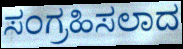
ಸಂಗ್ರಹಿಸಲಾದ